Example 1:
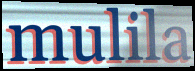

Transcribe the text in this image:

mulila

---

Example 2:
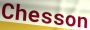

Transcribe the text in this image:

Chesson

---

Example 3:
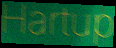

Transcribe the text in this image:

Hartup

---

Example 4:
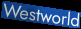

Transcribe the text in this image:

Westworld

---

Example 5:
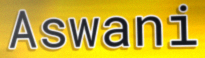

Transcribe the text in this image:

Aswani